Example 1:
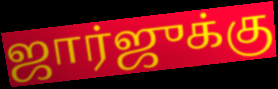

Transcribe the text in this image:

ஜார்ஜுக்கு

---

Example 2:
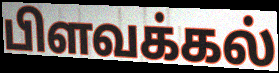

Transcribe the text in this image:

பிளவக்கல்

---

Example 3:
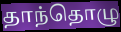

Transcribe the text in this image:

தாந்தொழு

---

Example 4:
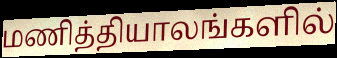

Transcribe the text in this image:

மணித்தியாலங்களில்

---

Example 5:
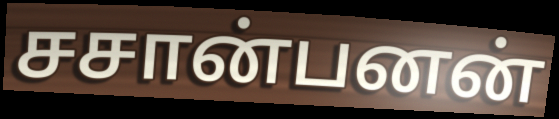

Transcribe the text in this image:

சசான்பனன்